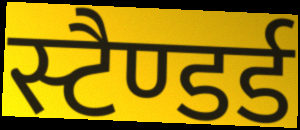
स्‍टैण्‍डर्ड